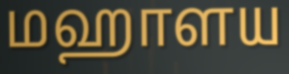
மஹாளய